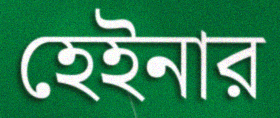
হেইনার